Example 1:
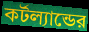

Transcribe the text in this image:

কর্টল্যান্ডের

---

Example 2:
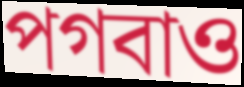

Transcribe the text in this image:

পগবাও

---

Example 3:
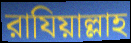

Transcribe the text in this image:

রাযিয়াল্লাহ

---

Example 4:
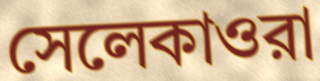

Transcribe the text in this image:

সেলেকাওরা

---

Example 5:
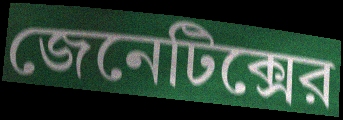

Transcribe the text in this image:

জেনেটিক্সের